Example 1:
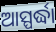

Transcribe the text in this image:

ଆସ୍ପର୍ଦ୍ଧା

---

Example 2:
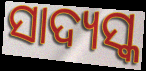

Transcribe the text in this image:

ସାଦ୍ୟସ୍କ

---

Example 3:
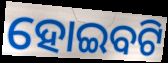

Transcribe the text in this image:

ହୋଇବଟି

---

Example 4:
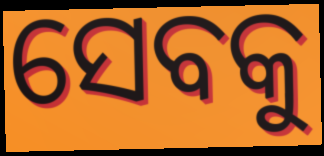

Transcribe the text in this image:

ସେବକୁ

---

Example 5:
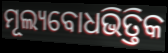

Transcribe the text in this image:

ମୂଲ୍ୟବୋଧଭିତ୍ତିକ